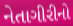
નેતાગીરીનો